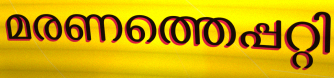
മരണത്തെപ്പറ്റി